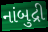
નાંબુદ્રી